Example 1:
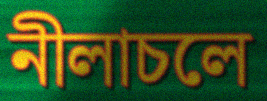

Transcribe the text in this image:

নীলাচলে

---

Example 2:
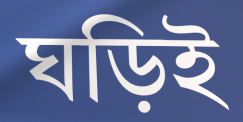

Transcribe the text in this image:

ঘড়িই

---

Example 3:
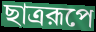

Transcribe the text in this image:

ছাত্ররূপে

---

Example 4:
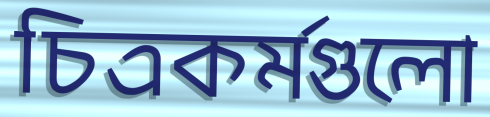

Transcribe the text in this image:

চিত্রকর্মগুলো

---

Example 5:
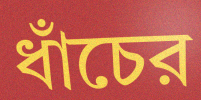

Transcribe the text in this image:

ধাঁচের